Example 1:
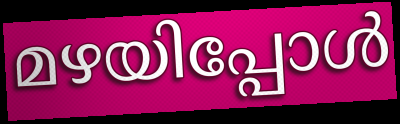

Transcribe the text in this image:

മഴയിപ്പോൾ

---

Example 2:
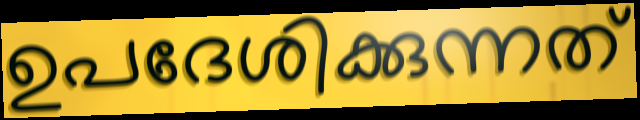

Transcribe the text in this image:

ഉപദേശിക്കുന്നത്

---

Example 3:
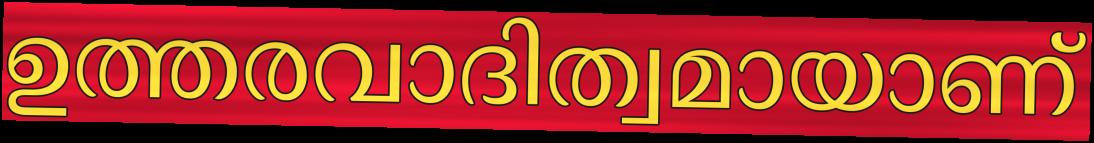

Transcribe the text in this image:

ഉത്തരവാദിത്വമായാണ്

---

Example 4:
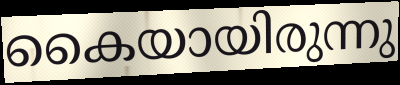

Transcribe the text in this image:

കൈയായിരുന്നു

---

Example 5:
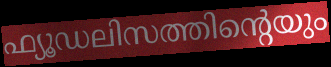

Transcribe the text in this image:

ഫ്യൂഡലിസത്തിന്റെയും